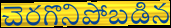
చెరగొనిపోబడిన